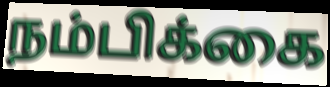
நம்பிக்கை